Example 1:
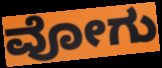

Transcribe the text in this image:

ವೋಗು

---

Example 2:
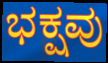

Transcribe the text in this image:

ಭಕ್ಷವು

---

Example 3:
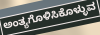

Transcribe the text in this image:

ಅಂತ್ಯಗೊಳಿಸಿಕೊಳ್ಳುವ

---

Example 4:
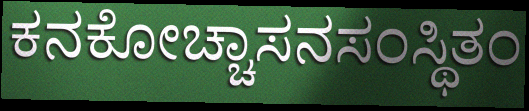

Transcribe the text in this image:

ಕನಕೋಚ್ಚಾಸನಸಂಸ್ಥಿತಂ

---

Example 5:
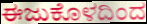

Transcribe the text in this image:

ಈಜುಕೊಳದಿಂದ